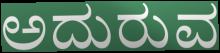
ಅದುರುವ